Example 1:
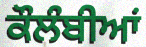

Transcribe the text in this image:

ਕੌਲੰਬੀਆਂ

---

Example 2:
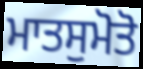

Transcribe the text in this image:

ਮਾਤਸੁਮੋਤੋ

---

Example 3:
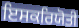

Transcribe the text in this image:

ਇਸਕਰਿਯੋਤੀ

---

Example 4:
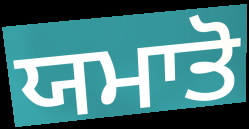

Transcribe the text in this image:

ਯਮਾਤੋ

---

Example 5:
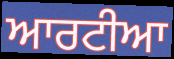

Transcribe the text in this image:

ਆਰਟੀਆ